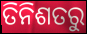
ତିନିଶତରୁ